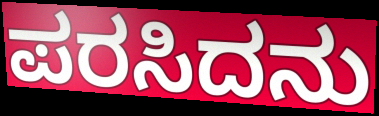
ಪರಸಿದನು